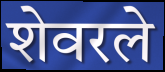
शेवरले